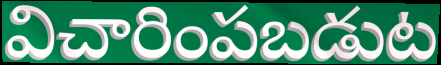
విచారింపబడుట